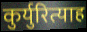
कुर्युरित्याह